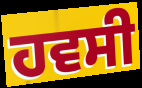
ਹਵਸੀ